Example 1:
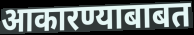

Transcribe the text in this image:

आकारण्याबाबत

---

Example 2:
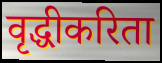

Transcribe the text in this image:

वृद्धीकरिता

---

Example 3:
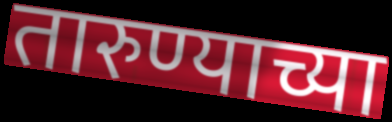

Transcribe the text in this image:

तारुण्याच्या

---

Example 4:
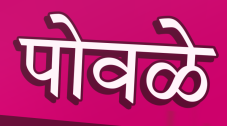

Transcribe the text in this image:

पोवळे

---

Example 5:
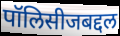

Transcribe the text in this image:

पॉलिसीजबद्दल